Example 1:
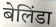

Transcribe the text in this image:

बेलिंडा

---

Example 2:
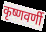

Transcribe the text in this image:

कृष्णवर्णी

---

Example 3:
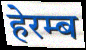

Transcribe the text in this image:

हेरम्ब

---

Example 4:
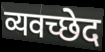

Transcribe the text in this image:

व्यवच्छेद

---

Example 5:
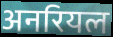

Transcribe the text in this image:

अनरियल